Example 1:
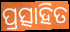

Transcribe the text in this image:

ପ୍ରତ୍ସାହିତ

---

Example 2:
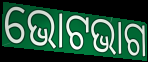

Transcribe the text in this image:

ଭୋଟଭାଗ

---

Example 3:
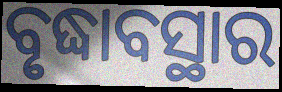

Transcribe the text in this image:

ବୃଦ୍ଧାବସ୍ଥାର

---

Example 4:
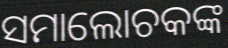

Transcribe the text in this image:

ସମାଲୋଚକଙ୍କ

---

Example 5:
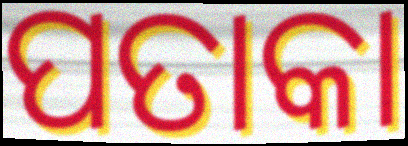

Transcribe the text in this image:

ପତାକା